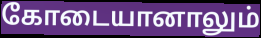
கோடையானாலும்